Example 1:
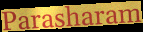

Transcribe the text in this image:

Parasharam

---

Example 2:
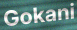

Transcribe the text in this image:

Gokani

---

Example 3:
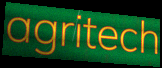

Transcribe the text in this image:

agritech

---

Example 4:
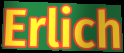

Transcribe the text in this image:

Erlich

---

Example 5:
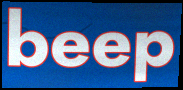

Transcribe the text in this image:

beep